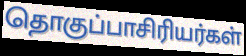
தொகுப்பாசிரியர்கள்